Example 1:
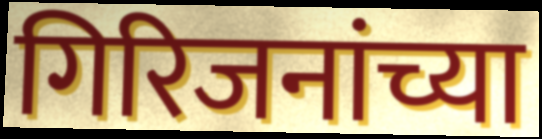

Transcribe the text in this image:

गिरिजनांच्या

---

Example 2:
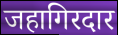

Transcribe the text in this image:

जहागिरदार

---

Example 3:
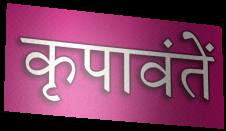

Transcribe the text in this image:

कृपावंतें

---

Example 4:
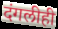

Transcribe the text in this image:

दंगलीही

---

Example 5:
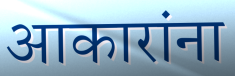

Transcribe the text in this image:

आकारांना